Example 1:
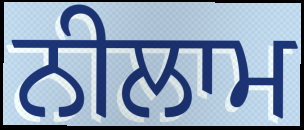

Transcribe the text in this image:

ਨੀਲਾਮ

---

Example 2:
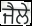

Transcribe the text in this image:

ਜੈਲੇ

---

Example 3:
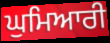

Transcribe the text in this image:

ਘੁਮਿਆਰੀ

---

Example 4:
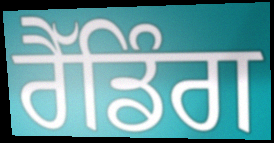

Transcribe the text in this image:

ਰੈੱਡਿੰਗ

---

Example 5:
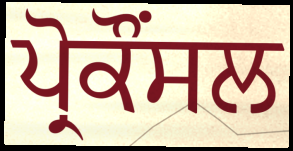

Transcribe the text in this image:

ਪ੍ਰੋਕੌਂਸਲ